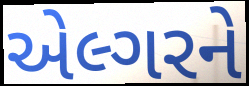
એલ્ગરને